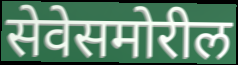
सेवेसमोरील